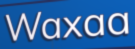
Waxaa